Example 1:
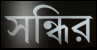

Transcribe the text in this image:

সন্ধির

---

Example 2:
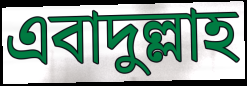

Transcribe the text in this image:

এবাদুল্লাহ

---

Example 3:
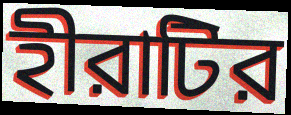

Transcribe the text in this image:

হীরাটির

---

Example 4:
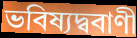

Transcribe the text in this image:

ভবিষ্যদ্ববাণী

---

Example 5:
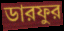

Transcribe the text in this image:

ডারফুর